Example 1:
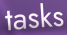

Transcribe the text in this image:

tasks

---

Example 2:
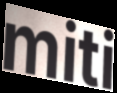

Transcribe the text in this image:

miti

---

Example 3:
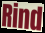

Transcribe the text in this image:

Rind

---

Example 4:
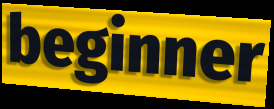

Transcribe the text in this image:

beginner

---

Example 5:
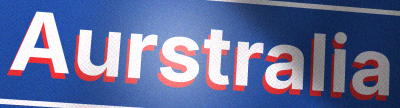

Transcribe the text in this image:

Aurstralia